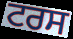
ਟਰਸ